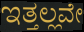
ಇತ್ತಲ್ಲವೇ